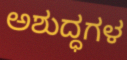
ಅಶುದ್ಧಗಳ